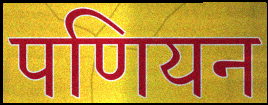
पणियन